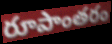
రూపాంతరం